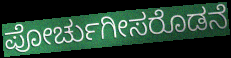
ಪೋರ್ಚುಗೀಸರೊಡನೆ